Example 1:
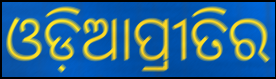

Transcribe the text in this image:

ଓଡ଼ିଆପ୍ରୀତିର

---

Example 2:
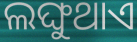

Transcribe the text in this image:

ଲଙ୍ଘୁଥାଏ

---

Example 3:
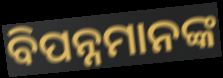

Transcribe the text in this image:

ବିପନ୍ନମାନଙ୍କ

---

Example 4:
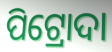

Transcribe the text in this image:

ପିଟ୍ରୋଦା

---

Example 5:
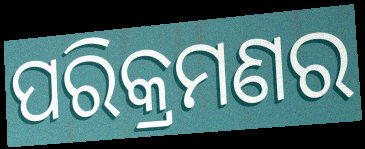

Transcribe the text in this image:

ପରିକ୍ରମଣର